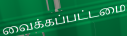
வைக்கப்பட்டமை